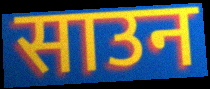
साउन